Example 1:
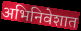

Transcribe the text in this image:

अभिनिवेशात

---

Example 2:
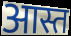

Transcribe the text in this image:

आस्त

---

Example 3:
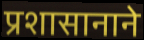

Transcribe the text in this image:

प्रशासानाने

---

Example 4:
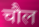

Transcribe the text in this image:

चौल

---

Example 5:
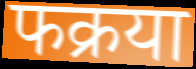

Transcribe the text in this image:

फक्रया